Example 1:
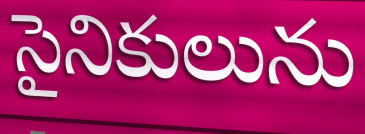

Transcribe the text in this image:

సైనికులును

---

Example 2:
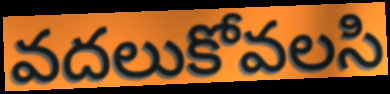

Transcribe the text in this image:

వదలుకోవలసి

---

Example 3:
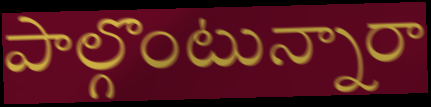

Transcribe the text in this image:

పాల్గొంటున్నారా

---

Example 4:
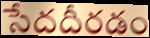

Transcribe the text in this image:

సేదదీరడం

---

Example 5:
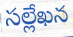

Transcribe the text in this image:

సల్లేఖన